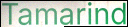
Tamarind